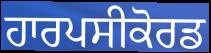
ਹਾਰਪਸੀਕੋਰਡ